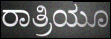
ರಾತ್ರಿಯೂ